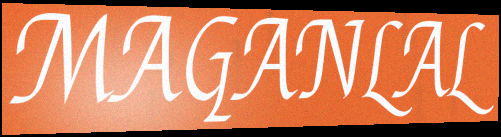
MAGANLAL